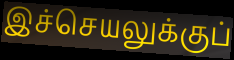
இச்செயலுக்குப்